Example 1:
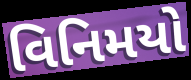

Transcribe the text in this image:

વિનિમયો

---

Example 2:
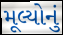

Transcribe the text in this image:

મૂલ્યોનું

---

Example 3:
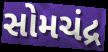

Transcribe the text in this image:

સોમચંદ્ર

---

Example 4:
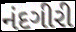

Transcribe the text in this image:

નંદગીરી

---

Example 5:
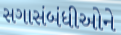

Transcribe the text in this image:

સગાસંબંધીઓને